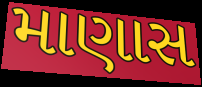
માણાસ